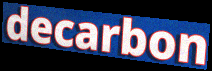
decarbon